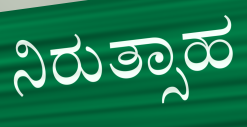
ನಿರುತ್ಸಾಹ